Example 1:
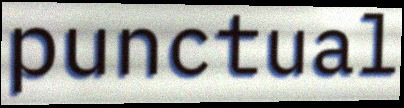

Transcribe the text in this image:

punctual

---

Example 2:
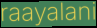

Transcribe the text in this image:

raayalani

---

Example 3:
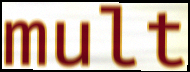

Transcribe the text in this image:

mult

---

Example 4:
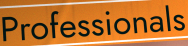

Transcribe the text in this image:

Professionals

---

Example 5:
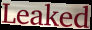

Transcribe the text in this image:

Leaked